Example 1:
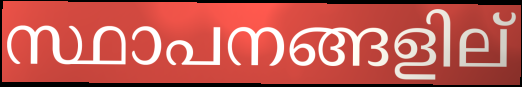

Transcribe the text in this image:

സ്ഥാപനങ്ങളില്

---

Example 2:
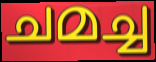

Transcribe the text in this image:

ചമച്ച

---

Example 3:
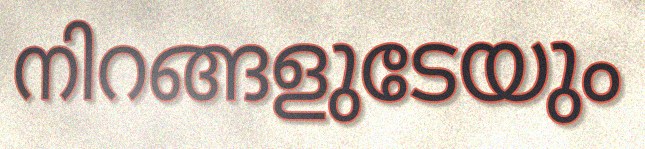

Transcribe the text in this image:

നിറങ്ങളുടേയും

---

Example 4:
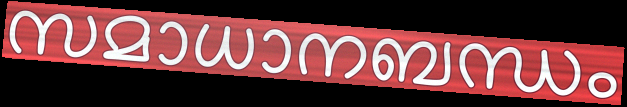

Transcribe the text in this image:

സമാധാനബന്ധം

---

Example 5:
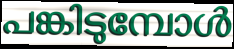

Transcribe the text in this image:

പങ്കിടുമ്പോൾ